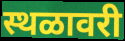
स्थळावरी